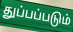
துப்பப்படும்